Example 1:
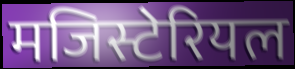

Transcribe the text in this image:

मजिस्टेरियल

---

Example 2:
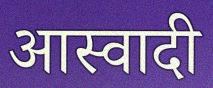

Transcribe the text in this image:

आस्वादी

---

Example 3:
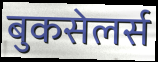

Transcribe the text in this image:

बुकसेलर्स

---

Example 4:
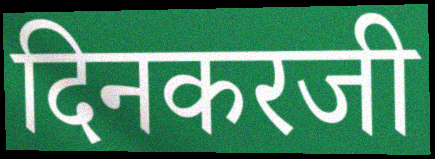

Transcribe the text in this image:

दिनकरजी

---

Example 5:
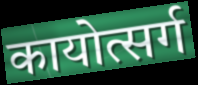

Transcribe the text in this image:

कायोत्सर्ग